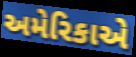
અમેરિકાએ